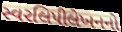
સ્વરલિપીલેખનનો